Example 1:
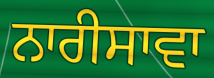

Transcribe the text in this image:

ਨਾਰੀਸਾਵਾ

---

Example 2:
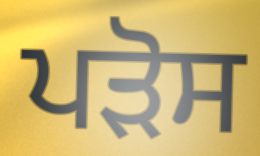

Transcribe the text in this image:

ਪੜੋਸ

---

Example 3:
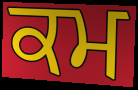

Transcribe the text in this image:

ਕਮ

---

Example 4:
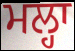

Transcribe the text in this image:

ਮਲ੍ਹਾ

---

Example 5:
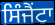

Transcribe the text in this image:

ਸਿੰਜੈਂਟਾ